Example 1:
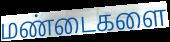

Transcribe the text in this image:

மண்டைகளை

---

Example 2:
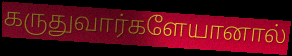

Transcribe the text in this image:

கருதுவார்களேயானால்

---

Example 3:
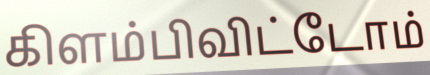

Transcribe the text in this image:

கிளம்பிவிட்டோம்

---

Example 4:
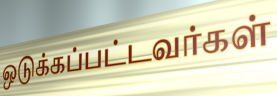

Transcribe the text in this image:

ஒடுக்கப்பட்டவர்கள்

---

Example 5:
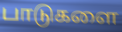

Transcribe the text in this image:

பாடுகளை